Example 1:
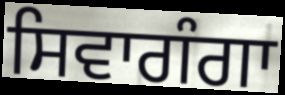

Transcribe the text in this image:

ਸਿਵਾਗੰਗਾ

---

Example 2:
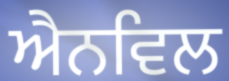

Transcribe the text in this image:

ਐਨਵਿਲ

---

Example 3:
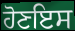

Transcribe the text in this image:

ਹੋਣਇਸ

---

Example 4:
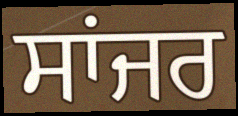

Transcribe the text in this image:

ਸਾਂਜਰ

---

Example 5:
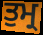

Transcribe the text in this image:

ਤੁਮ੍ਰ